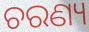
ଚରଣ୍ୟ